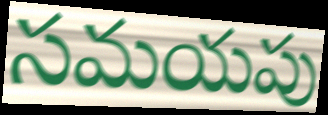
సమయపు